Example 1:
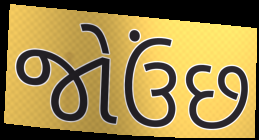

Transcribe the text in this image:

જોઉંછ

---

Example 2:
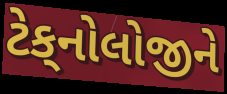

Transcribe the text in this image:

ટેક્‌નોલોજીને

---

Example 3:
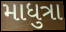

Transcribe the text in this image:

માધુત્રા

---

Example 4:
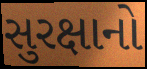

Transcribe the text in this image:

સુરક્ષાનો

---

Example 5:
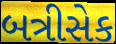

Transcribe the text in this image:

બત્રીસેક